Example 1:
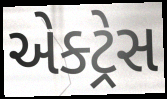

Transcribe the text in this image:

એક્ટ્રેસ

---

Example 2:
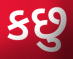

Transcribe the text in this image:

કછુ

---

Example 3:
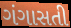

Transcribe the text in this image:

ગંગાસતી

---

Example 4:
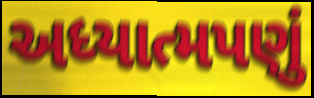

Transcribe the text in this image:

અધ્યાત્મપણું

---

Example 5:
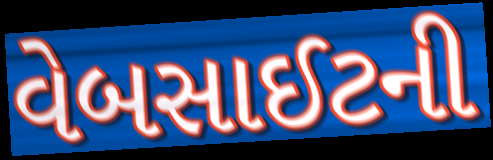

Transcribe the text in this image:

વેબસાઈટની